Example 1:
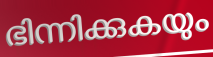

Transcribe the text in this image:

ഭിന്നിക്കുകയും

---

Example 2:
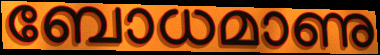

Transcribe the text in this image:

ബോധമാണു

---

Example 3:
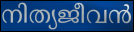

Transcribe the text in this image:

നിത്യജീവൻ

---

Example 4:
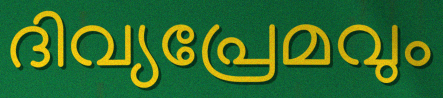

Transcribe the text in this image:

ദിവ്യപ്രേമവും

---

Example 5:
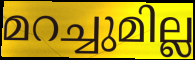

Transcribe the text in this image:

മറച്ചുമില്ല